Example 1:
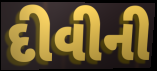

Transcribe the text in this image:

દીવીની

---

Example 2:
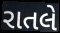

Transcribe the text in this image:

રાતલે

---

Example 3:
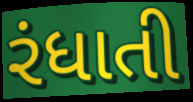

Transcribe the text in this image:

રંધાતી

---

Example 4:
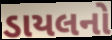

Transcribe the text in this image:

ડાયલનો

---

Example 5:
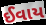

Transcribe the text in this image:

ઈવાય